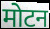
मोटन